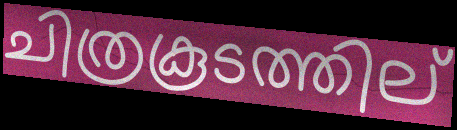
ചിത്രകൂടത്തില്